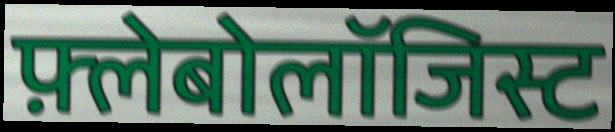
फ़्लेबोलॉजिस्ट